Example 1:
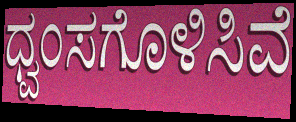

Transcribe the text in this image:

ಧ್ವಂಸಗೊಳಿಸಿವೆ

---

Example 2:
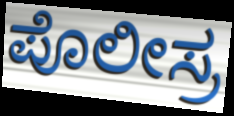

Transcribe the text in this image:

ಪೊಲೀಸ್ರ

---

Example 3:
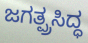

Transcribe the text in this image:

ಜಗತ್ಪ್ರಸಿದ್ಧ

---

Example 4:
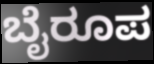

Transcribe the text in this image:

ಬೈರೂಪ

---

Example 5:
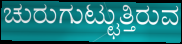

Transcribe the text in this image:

ಚುರುಗುಟ್ಟುತ್ತಿರುವ